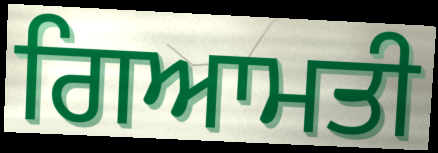
ਗਿਆਮਤੀ